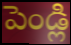
పెండ్లి